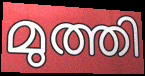
മുത്തി